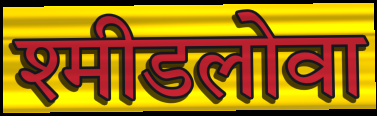
श्मीडलोवा